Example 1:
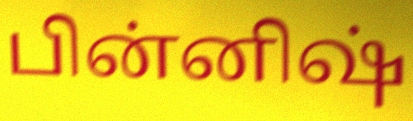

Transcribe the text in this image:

பின்னிஷ்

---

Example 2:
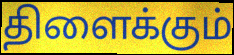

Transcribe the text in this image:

திளைக்கும்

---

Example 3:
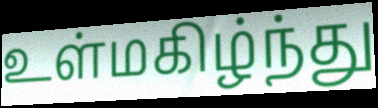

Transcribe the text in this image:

உள்மகிழ்ந்து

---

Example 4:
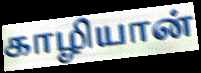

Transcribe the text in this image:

காழியான்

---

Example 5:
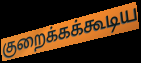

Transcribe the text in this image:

குறைக்கக்கூடிய